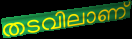
തടവിലാണ്